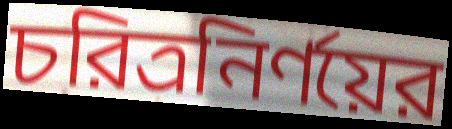
চরিত্রনির্ণয়ের